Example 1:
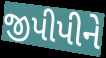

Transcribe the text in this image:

જીપીપીને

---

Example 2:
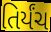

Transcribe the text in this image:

તિર્યંચ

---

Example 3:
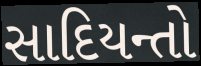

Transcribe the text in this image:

સાદિયન્તો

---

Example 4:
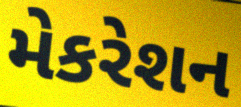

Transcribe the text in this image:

મેકરેશન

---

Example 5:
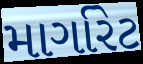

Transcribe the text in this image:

માર્ગારેટ